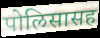
पोलिसासह